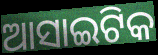
ଆସାଇଟିକ